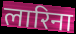
लारिना